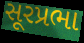
સૂરપ્રભા